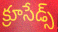
క్రూసేడ్స్